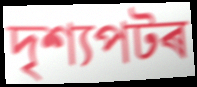
দৃশ্যপটৰ